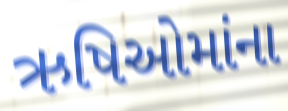
ઋષિઓમાંના